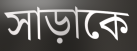
সাড়াকে